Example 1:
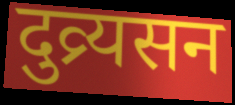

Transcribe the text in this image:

दुव्र्यसन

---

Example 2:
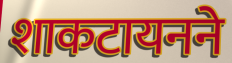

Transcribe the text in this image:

शाकटायनने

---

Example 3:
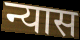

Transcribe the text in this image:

न्‍यास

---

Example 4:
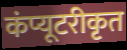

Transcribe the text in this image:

कंप्यूटरीकृत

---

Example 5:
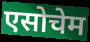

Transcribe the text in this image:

एसोचेम